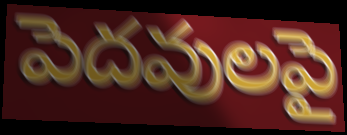
పెదవులపై